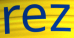
rez